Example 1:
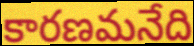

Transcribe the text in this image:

కారణమనేది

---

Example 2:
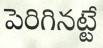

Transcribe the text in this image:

పెరిగినట్టే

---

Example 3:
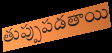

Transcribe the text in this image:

తుప్పుపడతాయి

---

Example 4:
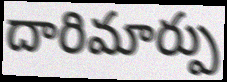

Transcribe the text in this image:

దారిమార్పు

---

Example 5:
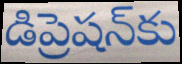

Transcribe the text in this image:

డిప్రెషన్‌కు